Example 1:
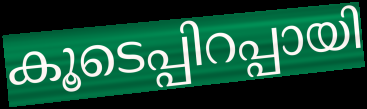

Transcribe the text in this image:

കൂടെപ്പിറപ്പായി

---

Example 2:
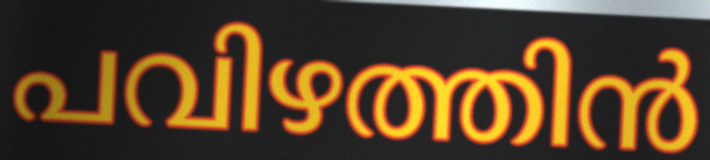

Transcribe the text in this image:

പവിഴത്തിൻ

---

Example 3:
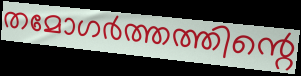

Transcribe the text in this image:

തമോഗർത്തത്തിന്റെ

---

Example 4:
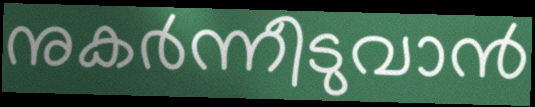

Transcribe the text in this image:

നുകർന്നീടുവാൻ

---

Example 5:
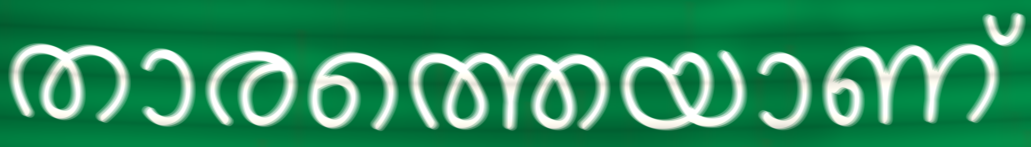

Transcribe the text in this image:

താരത്തെയാണ്